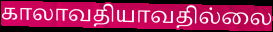
காலாவதியாவதில்லை